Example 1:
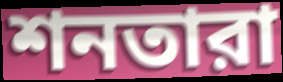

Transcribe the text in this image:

শনতারা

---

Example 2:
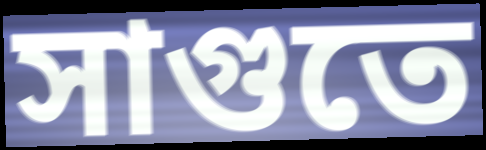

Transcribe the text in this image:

সাগুতে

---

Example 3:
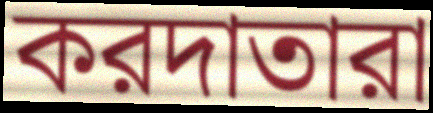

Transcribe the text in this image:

করদাতারা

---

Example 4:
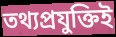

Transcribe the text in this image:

তথ্যপ্রযুক্তিই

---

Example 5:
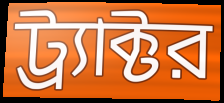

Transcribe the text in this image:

ট্র্যাক্টর